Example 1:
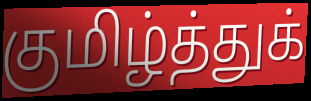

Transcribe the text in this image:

குமிழ்த்துக்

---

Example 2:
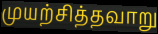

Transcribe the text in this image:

முயற்சித்தவாறு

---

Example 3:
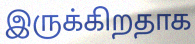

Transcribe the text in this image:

இருக்கிறதாக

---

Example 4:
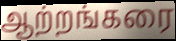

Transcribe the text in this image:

ஆற்றங்கரை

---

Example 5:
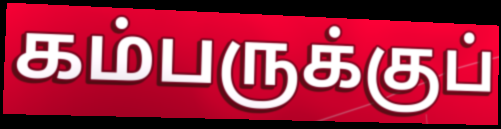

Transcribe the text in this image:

கம்பருக்குப்